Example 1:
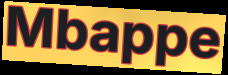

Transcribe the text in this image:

Mbappe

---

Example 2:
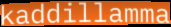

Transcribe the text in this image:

kaddillamma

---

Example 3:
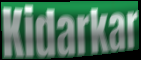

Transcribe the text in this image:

Kidarkar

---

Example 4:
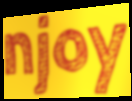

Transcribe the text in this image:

njoy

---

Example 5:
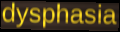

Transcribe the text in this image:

dysphasia